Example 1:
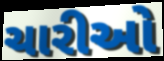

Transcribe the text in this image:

ચારીઓ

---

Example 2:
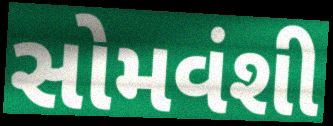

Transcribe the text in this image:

સોમવંશી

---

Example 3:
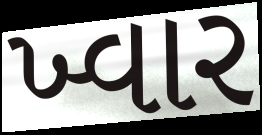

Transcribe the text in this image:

ખ્વાર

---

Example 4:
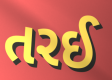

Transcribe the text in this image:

તરઈ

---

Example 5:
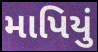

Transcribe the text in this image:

માપિયું